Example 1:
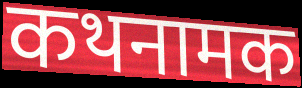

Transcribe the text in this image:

कथनामक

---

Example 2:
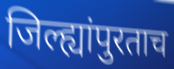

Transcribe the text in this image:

जिल्ह्यांपुरताच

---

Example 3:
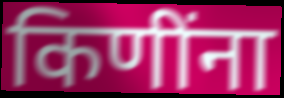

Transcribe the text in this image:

किणींना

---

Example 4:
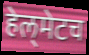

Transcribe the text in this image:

हेल्मेटच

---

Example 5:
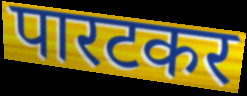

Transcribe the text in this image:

पारटकर